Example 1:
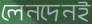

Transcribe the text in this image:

লেনদেনই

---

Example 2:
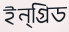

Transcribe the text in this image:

ইন্‌গ্রিড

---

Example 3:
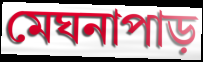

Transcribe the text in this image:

মেঘনাপাড়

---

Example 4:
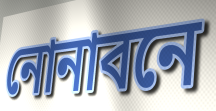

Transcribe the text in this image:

নোনাবনে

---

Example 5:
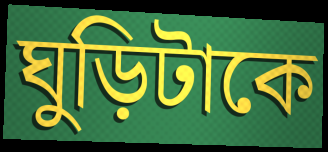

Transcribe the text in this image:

ঘুড়িটাকে